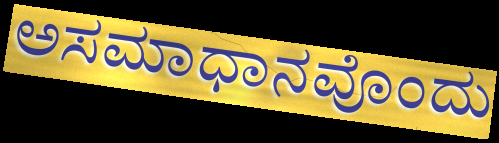
ಅಸಮಾಧಾನವೊಂದು